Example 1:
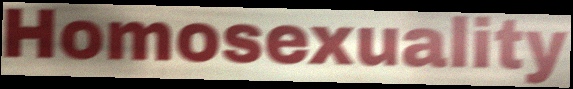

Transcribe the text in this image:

Homosexuality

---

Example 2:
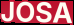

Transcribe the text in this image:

JOSA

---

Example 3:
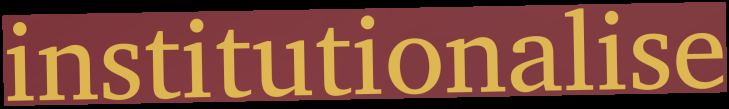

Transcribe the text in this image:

institutionalise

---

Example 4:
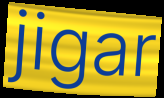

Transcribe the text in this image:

jigar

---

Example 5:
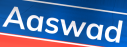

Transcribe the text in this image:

Aaswad